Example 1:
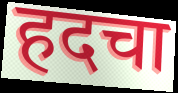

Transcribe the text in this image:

हदचा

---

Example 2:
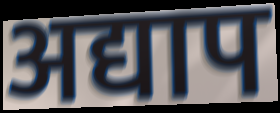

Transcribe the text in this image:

अद्याप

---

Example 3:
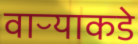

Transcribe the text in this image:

वाऱ्याकडे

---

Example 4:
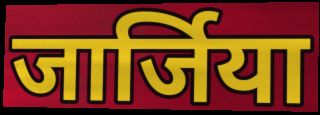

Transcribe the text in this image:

जार्जिया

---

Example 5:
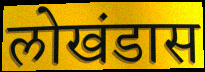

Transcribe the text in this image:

लोखंडास